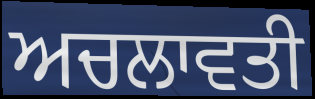
ਅਚਲਾਵਤੀ